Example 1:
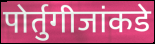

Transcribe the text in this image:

पोर्तुगीजांकडे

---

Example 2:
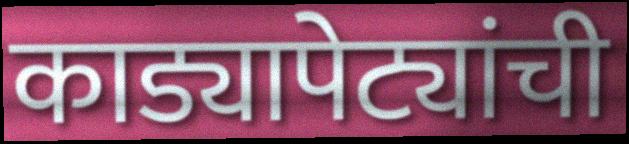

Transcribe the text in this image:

काड्यापेट्यांची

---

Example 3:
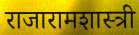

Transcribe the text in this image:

राजारामशास्त्री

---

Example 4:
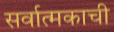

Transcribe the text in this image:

सर्वात्मकाची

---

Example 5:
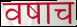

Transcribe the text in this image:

वषाच